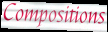
Compositions